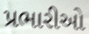
પ્રભારીઓ